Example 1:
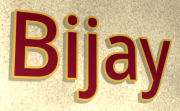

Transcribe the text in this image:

Bijay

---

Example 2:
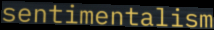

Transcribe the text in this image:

sentimentalism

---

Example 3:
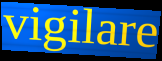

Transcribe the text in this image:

vigilare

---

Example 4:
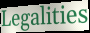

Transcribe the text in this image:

Legalities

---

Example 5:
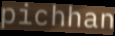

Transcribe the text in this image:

pichhan